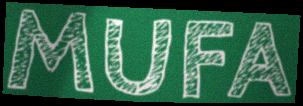
MUFA